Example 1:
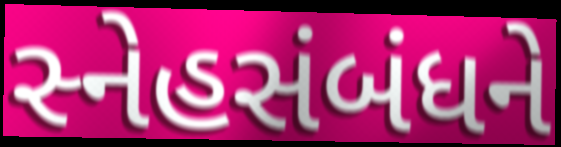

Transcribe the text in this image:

સ્નેહસંબંધને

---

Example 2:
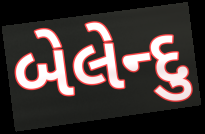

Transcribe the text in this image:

બેલેન્દુ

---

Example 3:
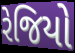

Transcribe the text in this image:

રેજિયો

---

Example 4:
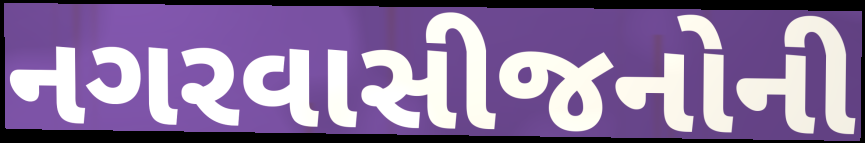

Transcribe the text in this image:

નગરવાસીજનોની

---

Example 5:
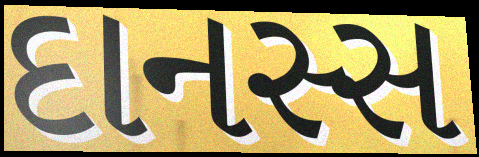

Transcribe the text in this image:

દાનસ્સ